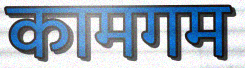
कामगम